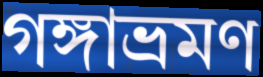
গঙ্গাভ্রমণ